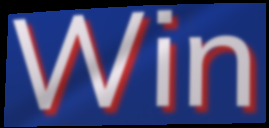
Win